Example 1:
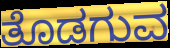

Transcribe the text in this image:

ತೊಡಗುವ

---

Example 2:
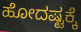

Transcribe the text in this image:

ಹೋದಷ್ಟಕ್ಕೆ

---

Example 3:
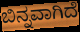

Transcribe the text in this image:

ಬಿನ್ನವಾಗಿದೆ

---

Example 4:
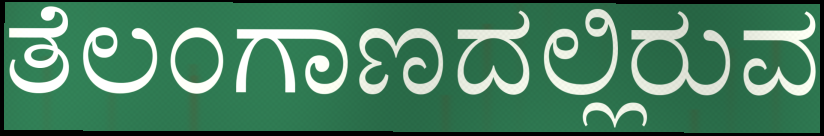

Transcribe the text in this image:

ತೆಲಂಗಾಣದಲ್ಲಿರುವ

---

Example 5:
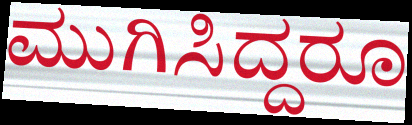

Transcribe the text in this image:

ಮುಗಿಸಿದ್ದರೂ